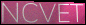
NCVET